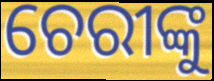
ଚେରୀଙ୍କୁ